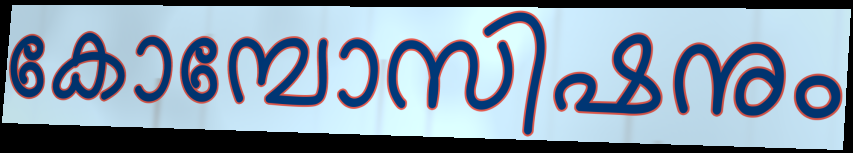
കോമ്പോസിഷനും